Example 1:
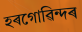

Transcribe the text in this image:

হৰগোৱিন্দৰ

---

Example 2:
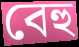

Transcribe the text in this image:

বেহু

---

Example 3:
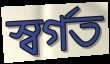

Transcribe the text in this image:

স্বৰ্গত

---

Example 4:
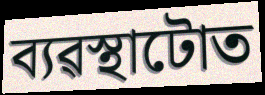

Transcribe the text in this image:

ব্যৱস্থাটোত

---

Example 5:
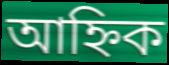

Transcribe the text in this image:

আহ্নিক